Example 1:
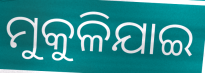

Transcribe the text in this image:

ମୁକୁଳିଯାଇ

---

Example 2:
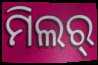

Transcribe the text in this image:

ମିଲର୍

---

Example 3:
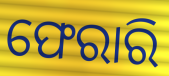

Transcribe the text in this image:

ଫେରାରି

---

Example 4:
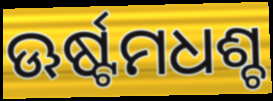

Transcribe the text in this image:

ଊର୍ଷ୍ଟମଧଶ୍ଚ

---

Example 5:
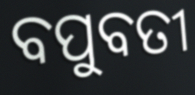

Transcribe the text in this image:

ବପୁବତୀ